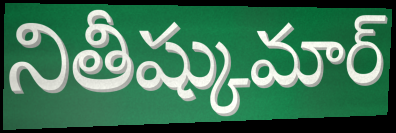
నితీష్కుమార్